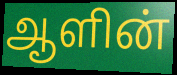
ஆளின்